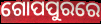
ଗୋପପୁରରେ